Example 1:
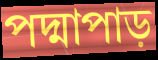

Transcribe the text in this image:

পদ্মাপাড়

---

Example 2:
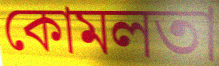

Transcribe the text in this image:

কোমলতা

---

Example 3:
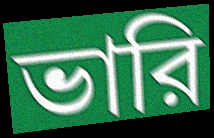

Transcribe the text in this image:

ভারি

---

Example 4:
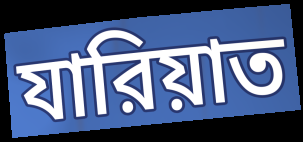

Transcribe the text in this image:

যারিয়াত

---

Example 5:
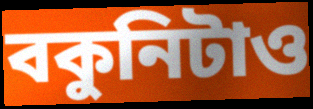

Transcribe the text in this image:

বকুনিটাও